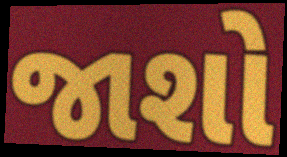
જાશો